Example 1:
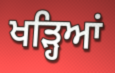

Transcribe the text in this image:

ਖੜ੍ਹਿਆਂ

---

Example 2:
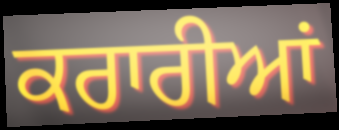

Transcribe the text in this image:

ਕਰਾਰੀਆਂ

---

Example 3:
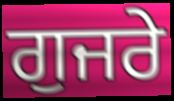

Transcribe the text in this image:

ਗੁਜਰੇ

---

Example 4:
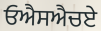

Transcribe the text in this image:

ਓਐਸਐਚਏ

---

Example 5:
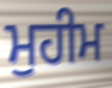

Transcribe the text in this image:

ਮੁਹੀਮ